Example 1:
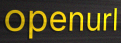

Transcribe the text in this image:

openurl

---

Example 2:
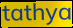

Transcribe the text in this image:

tathya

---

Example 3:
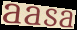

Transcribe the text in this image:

aasa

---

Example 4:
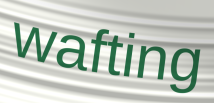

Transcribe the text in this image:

wafting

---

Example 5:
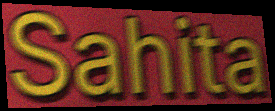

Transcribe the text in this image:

Sahita